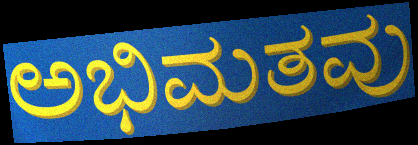
ಅಭಿಮತವು